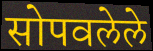
सोपवलेले